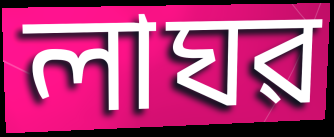
লাঘৱ